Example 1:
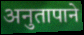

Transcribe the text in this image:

अनुतापाने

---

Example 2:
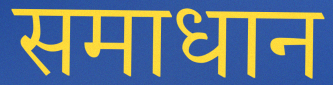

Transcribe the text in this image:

समाधान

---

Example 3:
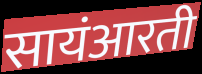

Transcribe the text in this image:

सायंआरती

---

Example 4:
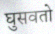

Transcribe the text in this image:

घुसवतो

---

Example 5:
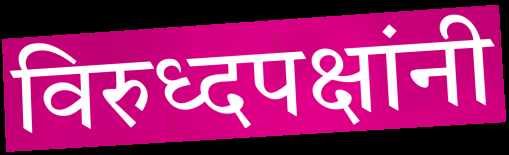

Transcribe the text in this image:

विरुध्दपक्षांनी